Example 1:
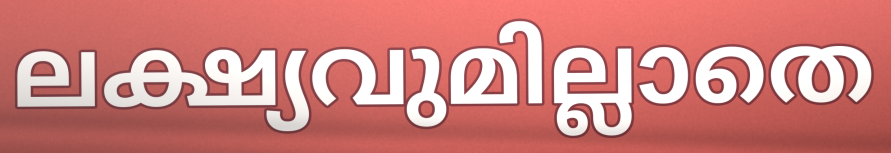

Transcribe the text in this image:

ലക്ഷ്യവുമില്ലാതെ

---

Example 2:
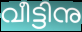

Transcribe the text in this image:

വീട്ടിനു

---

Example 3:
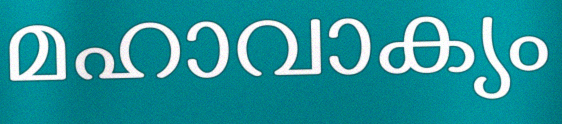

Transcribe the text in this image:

മഹാവാക്യം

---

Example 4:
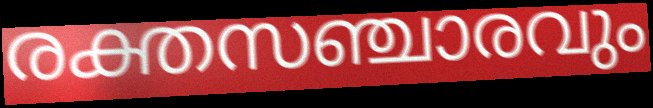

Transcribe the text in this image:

രക്തസഞ്ചാരവും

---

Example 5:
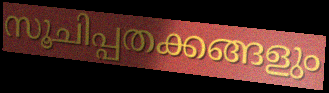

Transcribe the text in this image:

സൂചിപ്പതക്കങ്ങളും